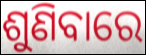
ଶୁଣିବାରେ